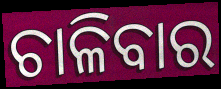
ଚାଳିବାର